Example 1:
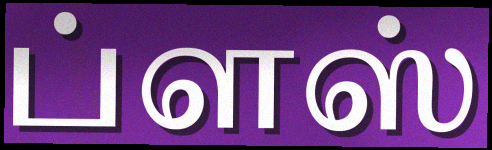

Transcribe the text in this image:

ப்ளஸ்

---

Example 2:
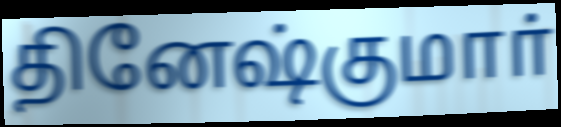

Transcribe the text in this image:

தினேஷ்குமார்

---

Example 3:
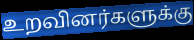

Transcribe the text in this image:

உறவினர்களுக்கு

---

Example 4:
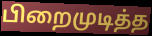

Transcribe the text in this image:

பிறைமுடித்த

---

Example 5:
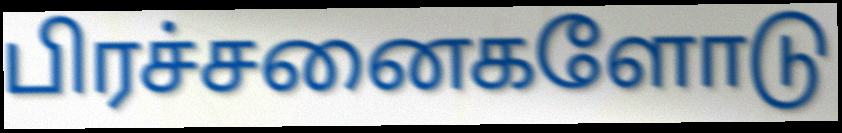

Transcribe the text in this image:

பிரச்சனைகளோடு